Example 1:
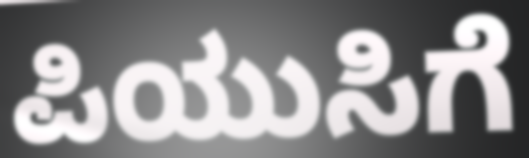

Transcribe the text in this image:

ಪಿಯುಸಿಗೆ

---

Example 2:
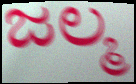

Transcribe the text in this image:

ಜಲ್ಮ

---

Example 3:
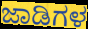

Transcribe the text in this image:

ಜಾಡಿಗಳ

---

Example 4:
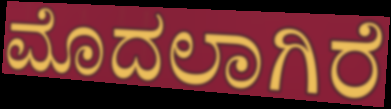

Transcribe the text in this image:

ಮೊದಲಾಗಿರೆ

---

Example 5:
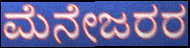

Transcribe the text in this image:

ಮೆನೇಜರರ